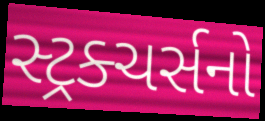
સ્ટ્રક્ચર્સનો